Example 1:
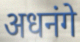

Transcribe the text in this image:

अधनंगे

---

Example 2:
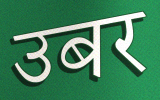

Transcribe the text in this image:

उबर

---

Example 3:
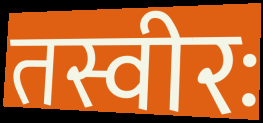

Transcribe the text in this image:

तस्वीरः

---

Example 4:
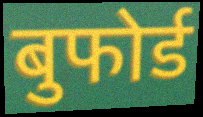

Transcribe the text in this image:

बुफोर्ड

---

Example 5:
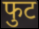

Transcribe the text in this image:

फुट